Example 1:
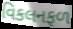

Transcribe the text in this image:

વિકલનફળ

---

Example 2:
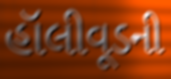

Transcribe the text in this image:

હૉલીવૂડની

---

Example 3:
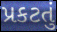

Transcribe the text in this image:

પ્રકટતું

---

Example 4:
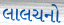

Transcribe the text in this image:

લાલચનો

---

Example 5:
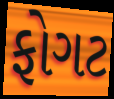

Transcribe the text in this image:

ફોગટ